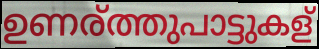
ഉണര്ത്തുപാട്ടുകള്